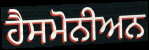
ਹੈਸਮੋਨੀਅਨ